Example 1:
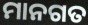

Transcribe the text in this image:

ମାନଗତ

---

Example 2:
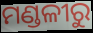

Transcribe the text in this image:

ମଣ୍ଡଳୀରୁ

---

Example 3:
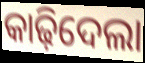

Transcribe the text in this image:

କାଢ଼ିଦେଲା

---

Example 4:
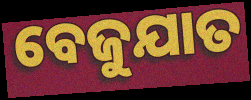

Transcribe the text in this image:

ବେଜୁଯାତ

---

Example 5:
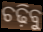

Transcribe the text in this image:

ଚଢ଼ିବୁ